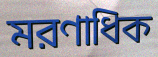
মরণাধিক